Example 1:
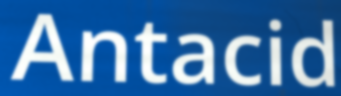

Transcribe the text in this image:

Antacid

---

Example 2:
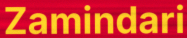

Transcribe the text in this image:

Zamindari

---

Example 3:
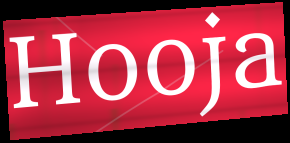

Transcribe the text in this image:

Hooja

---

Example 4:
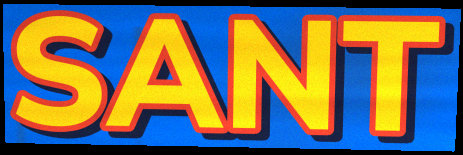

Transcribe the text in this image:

SANT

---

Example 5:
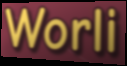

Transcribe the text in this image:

Worli